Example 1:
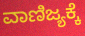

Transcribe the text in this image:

ವಾಣಿಜ್ಯಕ್ಕೆ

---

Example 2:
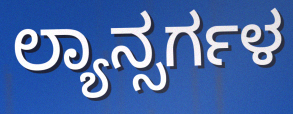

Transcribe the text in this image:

ಲ್ಯಾನ್ಸರ್ಗಳ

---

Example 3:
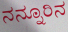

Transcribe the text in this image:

ನನ್ನೂರಿನ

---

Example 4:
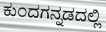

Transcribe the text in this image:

ಕುಂದಗನ್ನಡದಲ್ಲಿ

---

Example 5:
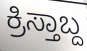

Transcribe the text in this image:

ಕ್ರಿಸ್ತಾಬ್ದ